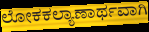
ಲೋಕಕಲ್ಯಾಣಾರ್ಥವಾಗಿ